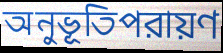
অনুভূতিপরায়ণ